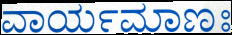
ವಾರ್ಯಮಾಣಃ